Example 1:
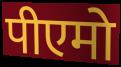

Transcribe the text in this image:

पीएमो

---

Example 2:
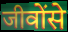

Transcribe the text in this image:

जीवोंसे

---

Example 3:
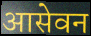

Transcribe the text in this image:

आसेवन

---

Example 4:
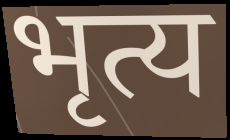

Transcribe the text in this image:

भृत्य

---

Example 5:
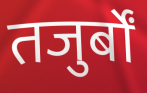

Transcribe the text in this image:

तजुर्बों